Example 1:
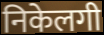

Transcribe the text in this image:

निकेलगी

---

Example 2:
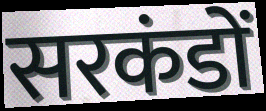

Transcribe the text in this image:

सरकंडों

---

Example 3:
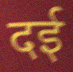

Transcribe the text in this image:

दई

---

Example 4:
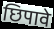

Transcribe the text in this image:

छिपावे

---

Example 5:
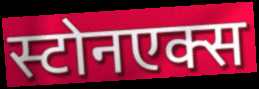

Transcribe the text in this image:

स्टोनएक्स